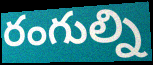
రంగుల్ని